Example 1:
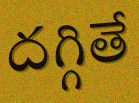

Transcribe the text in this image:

దగ్గితే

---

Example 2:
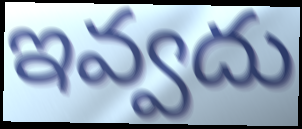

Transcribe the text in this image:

ఇవ్వదు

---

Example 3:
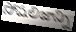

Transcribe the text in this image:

సోషలిజాన్ని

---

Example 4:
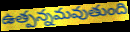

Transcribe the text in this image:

ఉత్పన్నమవుతుంది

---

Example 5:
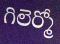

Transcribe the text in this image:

గిలెర్మో